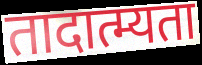
तादात्म्यता